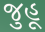
જુહૂ